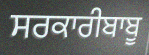
ਸਰਕਾਰੀਬਾਬੂ